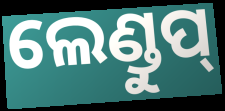
ଲେଣ୍ଡୁପ୍